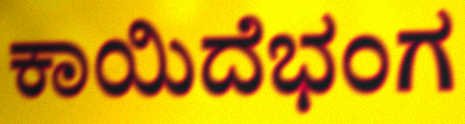
ಕಾಯಿದೆಭಂಗ